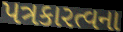
પત્રકારત્વના